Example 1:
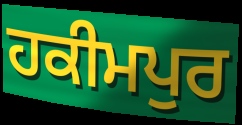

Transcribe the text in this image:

ਹਕੀਮਪੁਰ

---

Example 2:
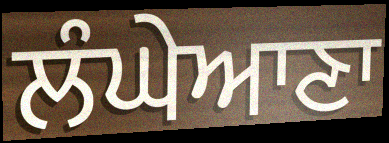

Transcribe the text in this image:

ਲੰਘੇਆਣਾ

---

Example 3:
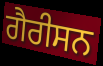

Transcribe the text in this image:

ਗੈਰੀਸਨ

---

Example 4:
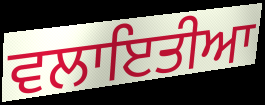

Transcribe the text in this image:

ਵਲਾਇਤੀਆ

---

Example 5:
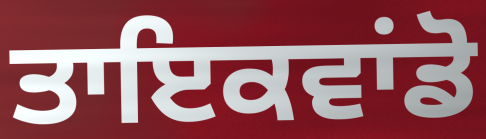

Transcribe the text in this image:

ਤਾਇਕਵਾਂਡੋ